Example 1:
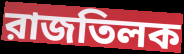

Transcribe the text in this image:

রাজতিলক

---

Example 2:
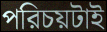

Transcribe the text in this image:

পরিচয়টাই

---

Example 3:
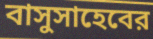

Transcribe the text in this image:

বাসুসাহেবের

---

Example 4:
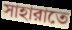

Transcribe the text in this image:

সাহারাতে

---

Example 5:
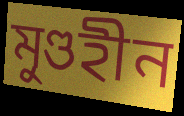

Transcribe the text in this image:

মুণ্ডহীন